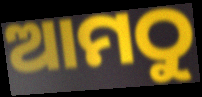
ଆମଠୁ